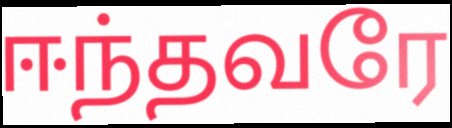
ஈந்தவரே